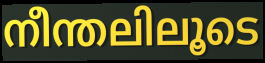
നീന്തലിലൂടെ